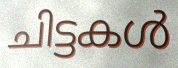
ചിട്ടകൾ